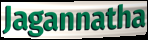
Jagannatha